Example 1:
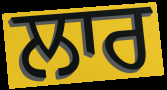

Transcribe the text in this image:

ਲਾਰ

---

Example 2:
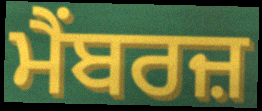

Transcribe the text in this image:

ਮੈਂਬਰਜ਼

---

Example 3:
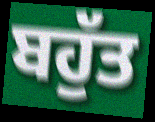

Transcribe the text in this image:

ਬਹੁੱਤ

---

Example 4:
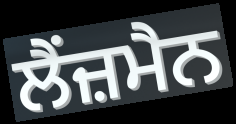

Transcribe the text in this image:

ਲੈਂਜ਼ਮੈਨ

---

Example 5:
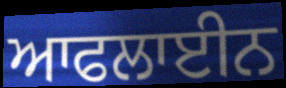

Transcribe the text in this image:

ਆਫਲਾਈਨ